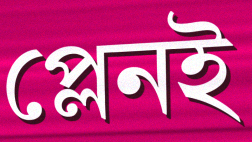
প্লেনই